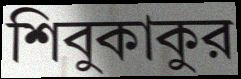
শিবুকাকুর